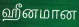
ஹீனமான